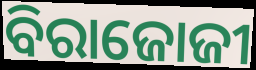
ବିରାଜୋଜୀ